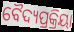
ବୈଦ୍ୟପ୍ରକ୍ରିୟା